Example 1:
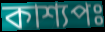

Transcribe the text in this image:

কাশ্যপঃ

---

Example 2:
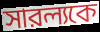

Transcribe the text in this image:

সারল্যকে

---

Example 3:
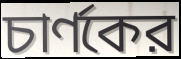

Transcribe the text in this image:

চার্ণকের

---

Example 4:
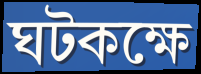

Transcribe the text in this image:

ঘটকক্ষে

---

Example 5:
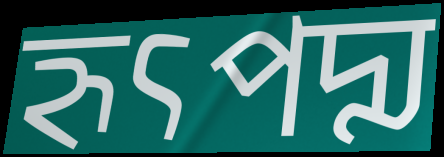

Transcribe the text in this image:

হৃৎপদ্ম